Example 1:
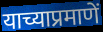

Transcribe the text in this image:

याच्याप्रमाणें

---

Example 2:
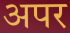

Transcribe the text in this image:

अपर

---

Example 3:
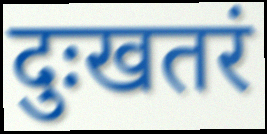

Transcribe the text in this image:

दुःखतरं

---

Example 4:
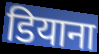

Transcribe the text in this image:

डियाना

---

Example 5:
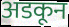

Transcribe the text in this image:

अडकून